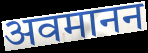
अवमानन